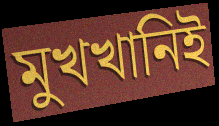
মুখখানিই